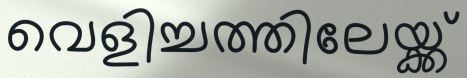
വെളിച്ചത്തിലേയ്ക്ക്